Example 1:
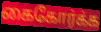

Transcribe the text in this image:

கைகோர்க்க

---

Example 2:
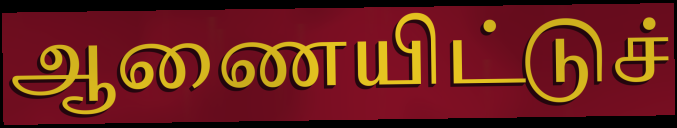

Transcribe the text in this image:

ஆணையிட்டுச்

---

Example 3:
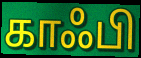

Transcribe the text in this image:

காஃபி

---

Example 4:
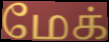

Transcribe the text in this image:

மேக்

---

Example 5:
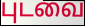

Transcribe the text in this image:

புடவை